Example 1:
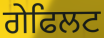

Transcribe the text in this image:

ਗੇਫਿਲਟ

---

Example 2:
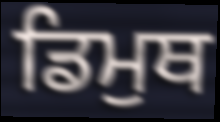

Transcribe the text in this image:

ਡਿਮੁਥ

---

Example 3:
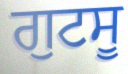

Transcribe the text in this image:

ਗੁਟਸੂ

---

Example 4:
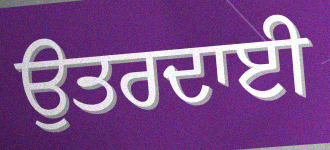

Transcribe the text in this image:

ਉਤਰਦਾਈ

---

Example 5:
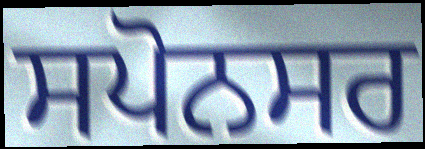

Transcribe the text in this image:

ਸਪੋਨਸਰ